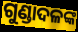
ଗୁଣ୍ଡାଦଳଙ୍କ